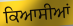
ਕਿਆਸੀਆਂ